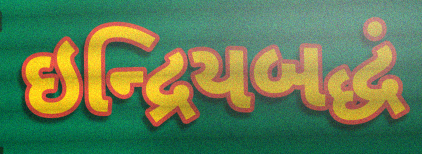
ઇન્દ્રિયબદ્ધં